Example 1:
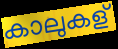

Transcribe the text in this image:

കാലുകള്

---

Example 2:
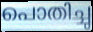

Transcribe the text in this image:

പൊതിച്ചു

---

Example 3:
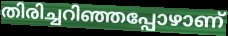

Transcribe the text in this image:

തിരിച്ചറിഞ്ഞപ്പോഴാണ്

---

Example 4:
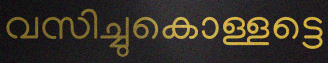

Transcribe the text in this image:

വസിച്ചുകൊള്ളട്ടെ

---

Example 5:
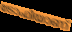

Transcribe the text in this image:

ട്രോഫിയാണ്